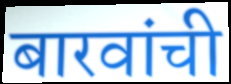
बारवांची